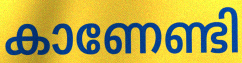
കാണേണ്ടി